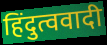
हिंदुत्ववादी